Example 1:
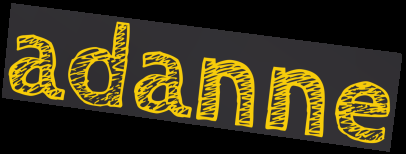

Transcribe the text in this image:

adanne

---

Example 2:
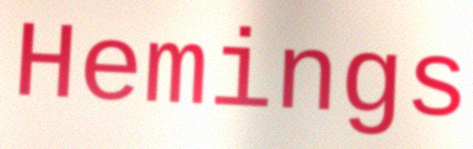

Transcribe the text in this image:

Hemings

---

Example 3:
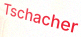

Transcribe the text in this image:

Tschacher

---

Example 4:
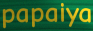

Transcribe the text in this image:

papaiya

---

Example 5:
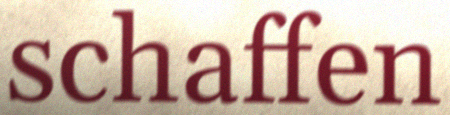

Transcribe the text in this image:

schaffen